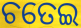
ଚତେଇ